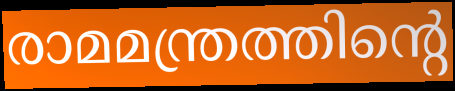
രാമമന്ത്രത്തിന്റെ